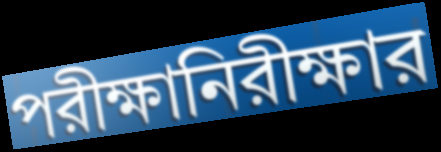
পরীক্ষানিরীক্ষার